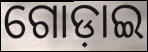
ଗୋଡ଼ାଇ